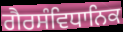
ਗੈਰਸੰਵਿਧਾਨਿਕ